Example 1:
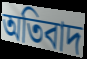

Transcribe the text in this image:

অতিবাদ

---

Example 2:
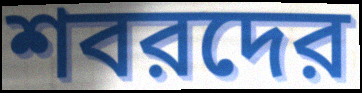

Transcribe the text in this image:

শবরদের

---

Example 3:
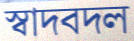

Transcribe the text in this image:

স্বাদবদল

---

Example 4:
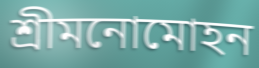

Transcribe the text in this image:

শ্রীমনোমোহন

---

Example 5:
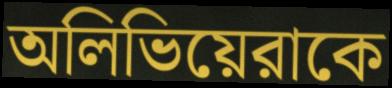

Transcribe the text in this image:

অলিভিয়েরাকে